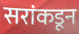
सरांकडून